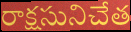
రాక్షసునిచేత